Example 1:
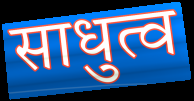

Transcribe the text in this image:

साधुत्व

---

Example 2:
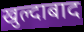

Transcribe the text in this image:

खुल्दाबाद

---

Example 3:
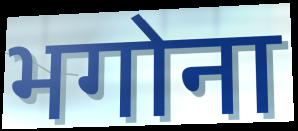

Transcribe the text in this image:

भगोना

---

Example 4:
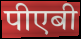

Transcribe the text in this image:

पीएबी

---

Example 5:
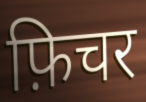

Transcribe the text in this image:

फ़िचर